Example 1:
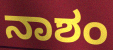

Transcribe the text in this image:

ನಾಶಂ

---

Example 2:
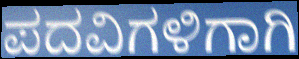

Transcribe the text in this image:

ಪದವಿಗಳಿಗಾಗಿ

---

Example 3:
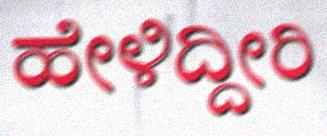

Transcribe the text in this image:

ಹೇಳಿದ್ದೀರಿ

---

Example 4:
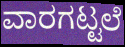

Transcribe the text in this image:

ವಾರಗಟ್ಟಲೆ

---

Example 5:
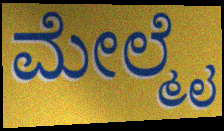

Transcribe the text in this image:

ಮೇಲ್ಮೈ